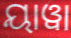
ୟାୱା